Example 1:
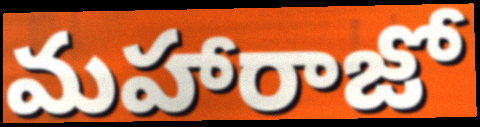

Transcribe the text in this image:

మహారాజో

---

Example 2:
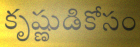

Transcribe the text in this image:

కృష్ణుడికోసం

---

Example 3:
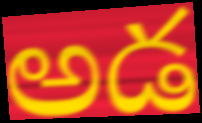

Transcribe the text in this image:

అడ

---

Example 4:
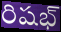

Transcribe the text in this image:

రిషభ్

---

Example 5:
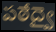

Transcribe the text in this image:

పఠేద్వై